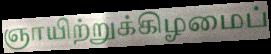
ஞாயிற்றுக்கிழமைப்